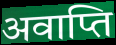
अवाप्ति